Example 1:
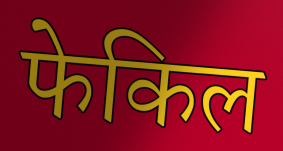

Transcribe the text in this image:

फेकिल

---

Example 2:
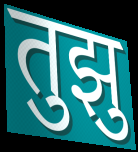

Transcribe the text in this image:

तुझु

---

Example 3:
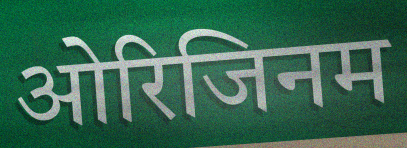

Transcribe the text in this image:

ओरिजिनम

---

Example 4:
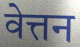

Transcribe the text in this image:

वेत्तन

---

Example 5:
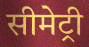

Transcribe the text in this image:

सीमेट्री